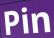
Pin